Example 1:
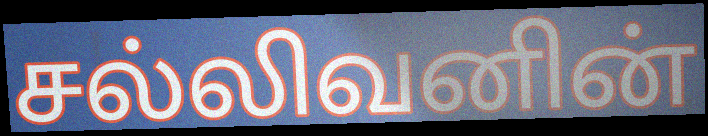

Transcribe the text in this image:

சல்லிவனின்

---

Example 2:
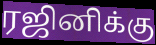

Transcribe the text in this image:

ரஜினிக்கு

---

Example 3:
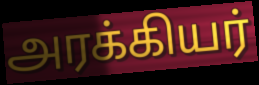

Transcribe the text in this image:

அரக்கியர்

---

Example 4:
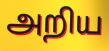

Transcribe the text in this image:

அறிய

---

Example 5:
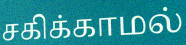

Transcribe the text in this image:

சகிக்காமல்